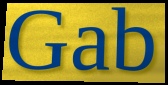
Gab